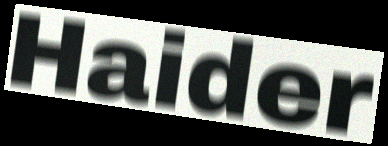
Haider